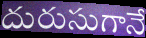
దురుసుగానే